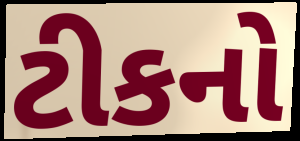
ટીકનો